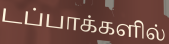
டப்பாக்களில்